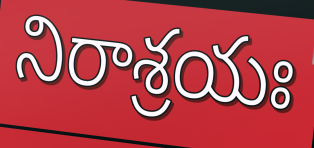
నిరాశ్రయః